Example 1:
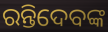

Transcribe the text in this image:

ରନ୍ତିଦେବଙ୍କ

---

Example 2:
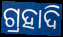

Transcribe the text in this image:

ଗ୍ରହାଦି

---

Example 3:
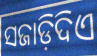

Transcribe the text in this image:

ସଜାଡ଼ିଦିଏ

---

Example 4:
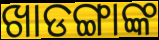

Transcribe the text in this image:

ଖାଡଙ୍ଗାଙ୍କ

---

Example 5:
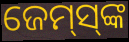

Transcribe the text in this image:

ଜେମ୍‌ସ୍‌ଙ୍କ